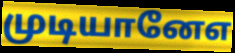
முடியானேஎ